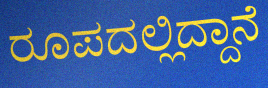
ರೂಪದಲ್ಲಿದ್ದಾನೆ